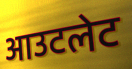
आउटलेट